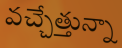
వచ్చేత్తున్నా